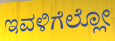
ಇವಳಿಗೆಲ್ಲೋ